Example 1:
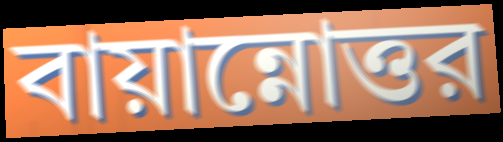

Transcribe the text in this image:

বায়ান্নোত্তর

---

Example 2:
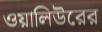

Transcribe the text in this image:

ওয়ালিউরের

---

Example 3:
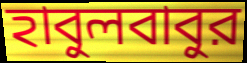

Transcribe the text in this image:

হাবুলবাবুর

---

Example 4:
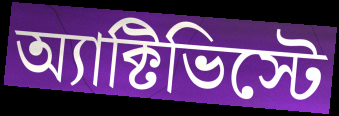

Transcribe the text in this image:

অ্যাক্টিভিস্টে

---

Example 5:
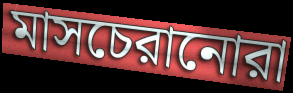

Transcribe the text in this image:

মাসচেরানোরা